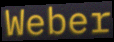
Weber